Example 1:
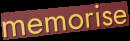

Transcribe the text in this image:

memorise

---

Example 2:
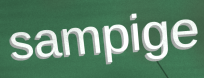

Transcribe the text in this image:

sampige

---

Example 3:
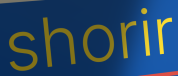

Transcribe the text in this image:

shorir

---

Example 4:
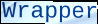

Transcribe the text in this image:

Wrapper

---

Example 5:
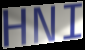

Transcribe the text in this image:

HNI